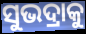
ସୁଭଦ୍ରାକୁ